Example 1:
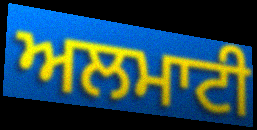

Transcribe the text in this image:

ਅਲਮਾਟੀ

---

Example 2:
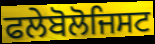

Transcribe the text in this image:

ਫਲੇਬੋਲੋਜਿਸਟ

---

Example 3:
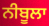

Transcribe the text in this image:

ਨੀਬੂਲਾ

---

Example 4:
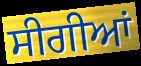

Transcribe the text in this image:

ਸੀਗੀਆਂ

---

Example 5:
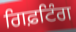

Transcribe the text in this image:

ਗਿਫ਼ਟਿੰਗ